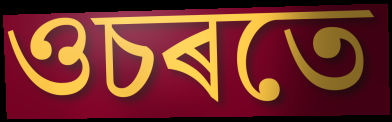
ওচৰতে